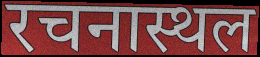
रचनास्थल